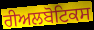
ਰੀਅਲਬੋਟਿਕਸ